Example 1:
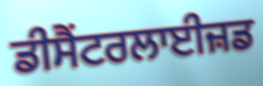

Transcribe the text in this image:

ਡੀਸੈਂਟਰਲਾਈਜ਼ਡ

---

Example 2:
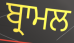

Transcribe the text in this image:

ਬ੍ਰਾਮਲ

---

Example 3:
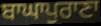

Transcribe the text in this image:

ਬਾਘਾਪੁਰਾਣਾ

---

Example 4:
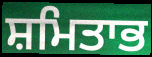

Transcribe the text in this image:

ਸ਼ਮਿਤਾਭ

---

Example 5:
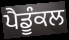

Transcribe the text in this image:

ਪੈਡੂੰਕਲ